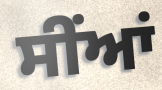
ਸੀਂਆਂ